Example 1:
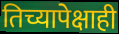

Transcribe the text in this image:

तिच्यापेक्षाही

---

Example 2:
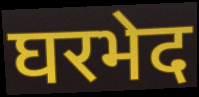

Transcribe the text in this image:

घरभेद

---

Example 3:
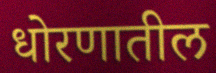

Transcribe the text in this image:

धोरणातील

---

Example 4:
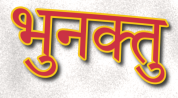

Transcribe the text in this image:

भुनक्तु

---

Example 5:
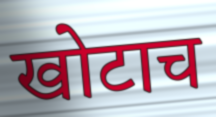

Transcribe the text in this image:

खोटाच